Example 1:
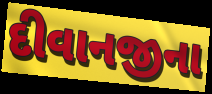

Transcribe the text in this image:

દીવાનજીના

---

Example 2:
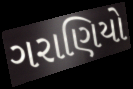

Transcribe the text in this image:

ગરાણિયો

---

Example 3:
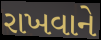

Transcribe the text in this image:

રાખવાને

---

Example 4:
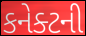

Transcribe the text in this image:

કનેક્ટની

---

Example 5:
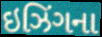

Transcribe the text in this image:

ઇઝિંગના